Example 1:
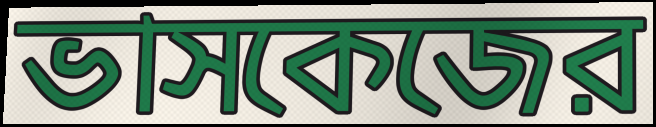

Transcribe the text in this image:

ভাসকেজের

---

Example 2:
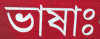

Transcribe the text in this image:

ভাষাঃ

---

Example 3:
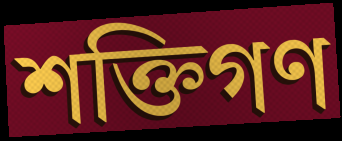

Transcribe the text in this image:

শক্তিগণ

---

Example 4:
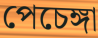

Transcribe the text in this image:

পেচেঙ্গা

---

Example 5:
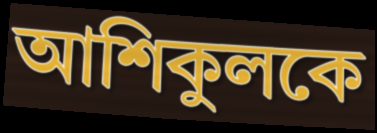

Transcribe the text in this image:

আশিকুলকে